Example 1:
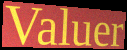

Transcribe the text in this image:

Valuer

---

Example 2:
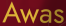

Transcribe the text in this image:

Awas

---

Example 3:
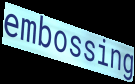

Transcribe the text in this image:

embossing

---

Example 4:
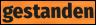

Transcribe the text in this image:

gestanden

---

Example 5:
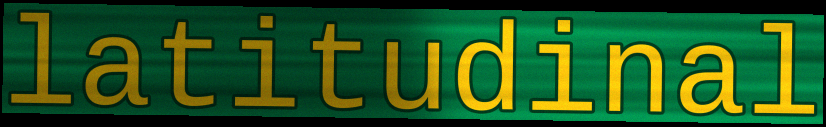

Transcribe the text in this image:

latitudinal